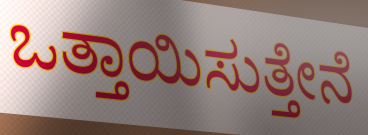
ಒತ್ತಾಯಿಸುತ್ತೇನೆ